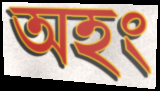
অহং